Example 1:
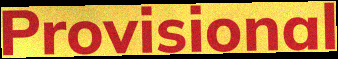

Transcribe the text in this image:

Provisional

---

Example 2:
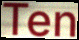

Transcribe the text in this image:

Ten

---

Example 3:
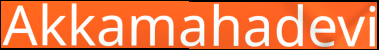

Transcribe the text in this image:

Akkamahadevi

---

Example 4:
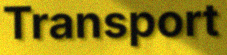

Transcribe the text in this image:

Transport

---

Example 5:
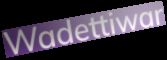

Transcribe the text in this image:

Wadettiwar